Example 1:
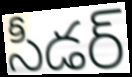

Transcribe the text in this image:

సీడర్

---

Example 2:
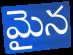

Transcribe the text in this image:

మైన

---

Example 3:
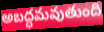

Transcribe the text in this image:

అబద్ధమవుతుంది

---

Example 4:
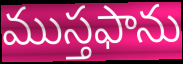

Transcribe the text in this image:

ముస్తఫాను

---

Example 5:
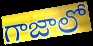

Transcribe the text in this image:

గాజాలో